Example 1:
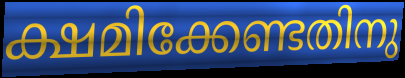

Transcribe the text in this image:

ക്ഷമിക്കേണ്ടതിനു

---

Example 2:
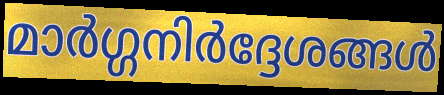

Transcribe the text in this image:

മാർഗ്ഗനിർദ്ദേശങ്ങൾ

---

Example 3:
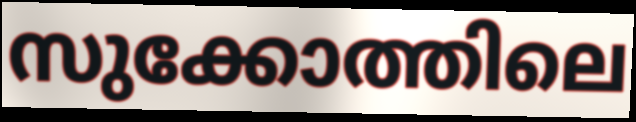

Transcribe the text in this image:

സുക്കോത്തിലെ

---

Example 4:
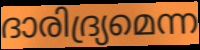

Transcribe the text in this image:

ദാരിദ്ര്യമെന്ന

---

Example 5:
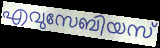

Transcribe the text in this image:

എവുസേബിയസ്